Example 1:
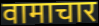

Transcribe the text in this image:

वामाचार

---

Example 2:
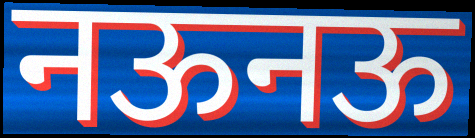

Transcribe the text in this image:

नऊनऊ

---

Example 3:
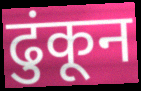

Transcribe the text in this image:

ढुंकून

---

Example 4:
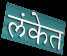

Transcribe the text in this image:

लंकेत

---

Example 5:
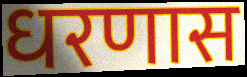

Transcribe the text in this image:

धरणास